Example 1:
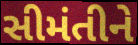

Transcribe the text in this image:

સીમંતીને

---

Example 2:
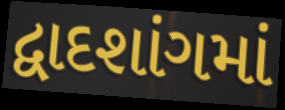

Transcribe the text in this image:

દ્વાદશાંગમાં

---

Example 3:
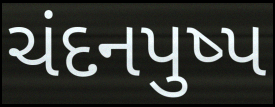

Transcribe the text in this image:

ચંદનપુષ્પ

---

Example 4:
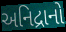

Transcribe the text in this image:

અનિદ્રાનો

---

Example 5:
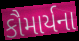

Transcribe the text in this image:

કૌમાર્યના